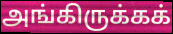
அங்கிருக்கக்